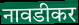
नावडीकर